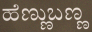
ಹೆಣ್ಣುಬಣ್ಣ